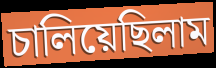
চালিয়েছিলাম